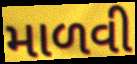
માળવી